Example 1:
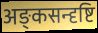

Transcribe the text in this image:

अङ्कसन्दृष्टि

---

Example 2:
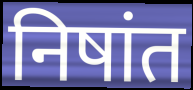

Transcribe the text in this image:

निषांत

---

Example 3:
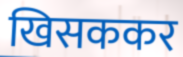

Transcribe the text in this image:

खिसककर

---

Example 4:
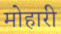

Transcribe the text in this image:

मोहारी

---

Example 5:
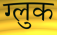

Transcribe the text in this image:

ग्लुक